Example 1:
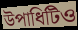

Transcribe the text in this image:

উপাধিটিও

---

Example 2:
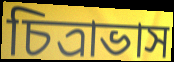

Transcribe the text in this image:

চিত্রাভাস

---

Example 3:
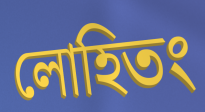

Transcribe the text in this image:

লোহিতং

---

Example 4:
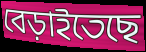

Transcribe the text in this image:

বেড়াইতেছে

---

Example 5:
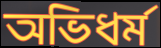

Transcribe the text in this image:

অভিধর্ম